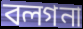
বলগনা